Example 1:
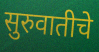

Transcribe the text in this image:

सुरुवातीचे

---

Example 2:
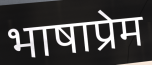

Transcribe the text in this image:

भाषाप्रेम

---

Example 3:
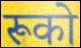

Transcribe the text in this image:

रूको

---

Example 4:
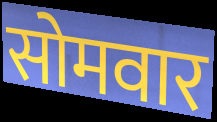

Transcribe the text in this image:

सोमवार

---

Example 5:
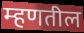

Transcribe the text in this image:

म्हणतील